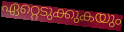
ഏറ്റെടുക്കുകയും